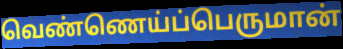
வெண்ணெய்ப்பெருமான்